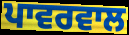
ਪਾਵਰਵਾਲ